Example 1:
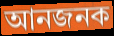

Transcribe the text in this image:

আনজনক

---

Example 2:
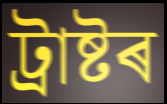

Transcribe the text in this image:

ট্ৰাষ্টৰ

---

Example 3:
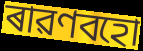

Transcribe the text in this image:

ৰাৱণবহো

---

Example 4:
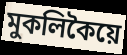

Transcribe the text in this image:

মুকলিকৈয়ে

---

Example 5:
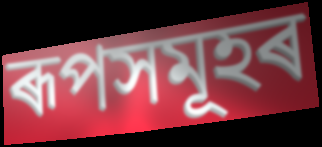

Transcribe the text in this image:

ৰূপসমূহৰ